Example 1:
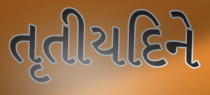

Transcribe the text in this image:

તૃતીયદિને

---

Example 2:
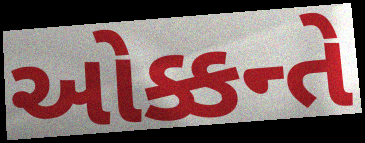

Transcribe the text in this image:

ઓક્કન્તે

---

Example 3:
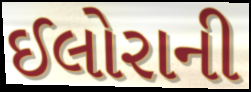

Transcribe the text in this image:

ઈલોરાની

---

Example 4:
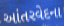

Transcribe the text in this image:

આંતરવેદના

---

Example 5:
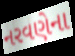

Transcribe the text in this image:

નરવણેના